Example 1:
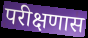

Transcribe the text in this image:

परीक्षणास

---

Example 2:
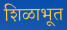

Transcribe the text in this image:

शिळाभूत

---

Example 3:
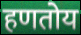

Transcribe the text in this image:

हणतोय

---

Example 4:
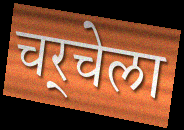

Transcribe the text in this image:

चर्चेला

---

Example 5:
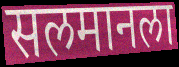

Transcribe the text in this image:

सलमानला